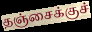
தஞ்சைக்குச்